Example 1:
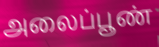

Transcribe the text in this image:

அலைப்பூண்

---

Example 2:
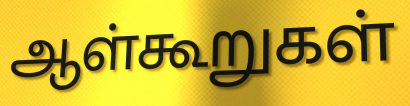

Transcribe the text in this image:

ஆள்கூறுகள்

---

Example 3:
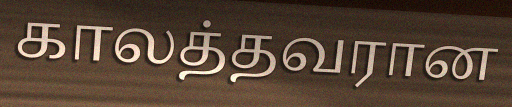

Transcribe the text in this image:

காலத்தவரான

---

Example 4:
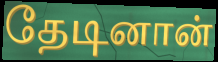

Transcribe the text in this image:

தேடினான்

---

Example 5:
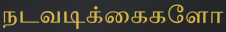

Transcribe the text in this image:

நடவடிக்கைகளோ